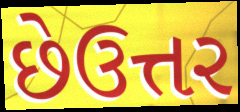
છેઉત્તર